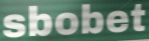
sbobet